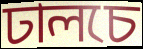
ঢালচে